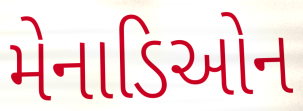
મેનાડિઓન